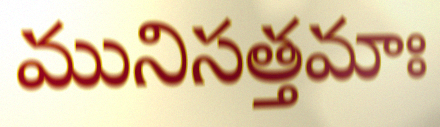
మునిసత్తమాః